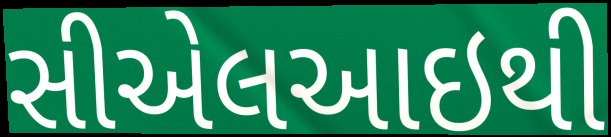
સીએલઆઇથી